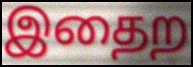
இதைற